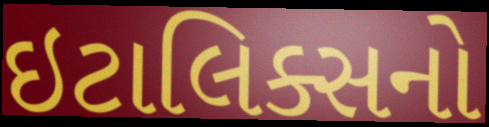
ઇટાલિક્સનો